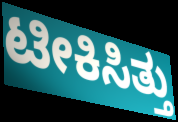
ಟೀಕಿಸಿತ್ತು